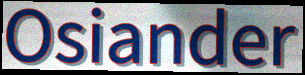
Osiander